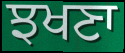
ਝਖਣਾ